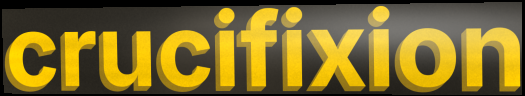
crucifixion